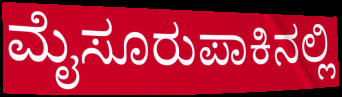
ಮೈಸೂರುಪಾಕಿನಲ್ಲಿ